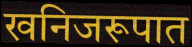
खनिजरूपात